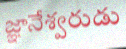
జ్ఞానేశ్వరుడు